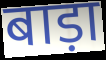
बाड़ा